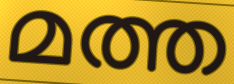
മത്ത